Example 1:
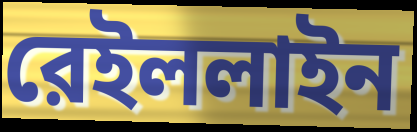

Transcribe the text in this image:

রেইললাইন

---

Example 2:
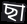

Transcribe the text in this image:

ছা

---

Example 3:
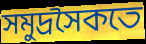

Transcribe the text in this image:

সমুদ্রসৈকতে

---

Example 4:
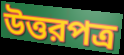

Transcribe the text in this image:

উত্তরপত্র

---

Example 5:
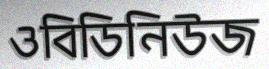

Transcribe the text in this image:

ওবিডিনিউজ